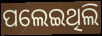
ପଲେଇଥିଲି